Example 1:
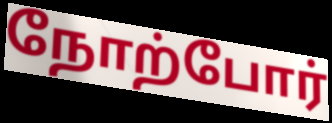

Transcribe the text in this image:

நோற்போர்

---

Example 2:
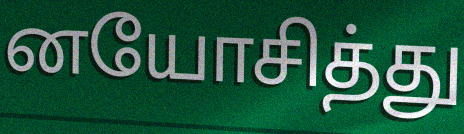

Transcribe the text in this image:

னயோசித்து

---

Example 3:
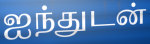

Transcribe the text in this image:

ஐந்துடன்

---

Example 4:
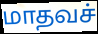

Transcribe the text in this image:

மாதவச்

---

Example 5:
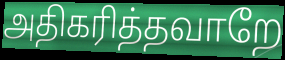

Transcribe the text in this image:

அதிகரித்தவாறே